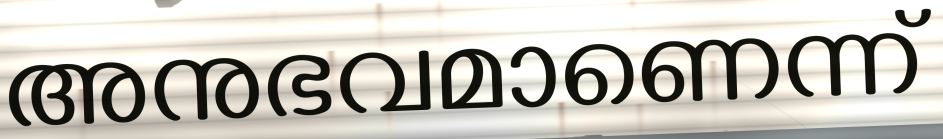
അനുഭവമാണെന്ന്